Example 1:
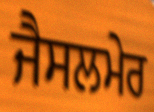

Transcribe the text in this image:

ਜੈਸਲਮੇਰ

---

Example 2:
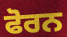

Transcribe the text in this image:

ਫੋਰਨ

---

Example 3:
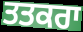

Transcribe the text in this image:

ਤਤਕਰਾ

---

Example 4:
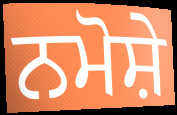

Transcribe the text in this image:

ਨਮੋਸ਼ੇ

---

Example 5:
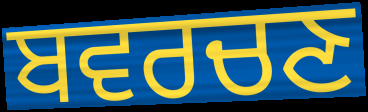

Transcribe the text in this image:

ਬਵਰਚਣ